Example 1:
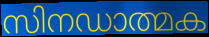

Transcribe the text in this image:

സിനഡാത്മക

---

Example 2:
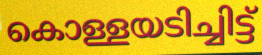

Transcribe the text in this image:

കൊള്ളയടിച്ചിട്ട്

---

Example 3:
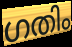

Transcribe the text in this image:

ഗതിം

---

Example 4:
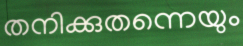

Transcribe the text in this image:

തനിക്കുതന്നെയും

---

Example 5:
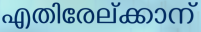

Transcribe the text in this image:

എതിരേല്ക്കാന്